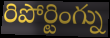
రిపోర్టింగ్ను